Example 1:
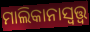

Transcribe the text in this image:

ମାଲିକାନାସ୍ୱତ୍ତ୍ୱ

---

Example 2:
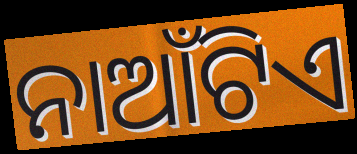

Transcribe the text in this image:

ନାଆଁଟିଏ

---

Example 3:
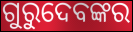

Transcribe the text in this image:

ଗୁରୁଦେବଙ୍କର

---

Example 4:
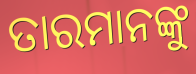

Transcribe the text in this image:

ତାରମାନଙ୍କୁ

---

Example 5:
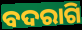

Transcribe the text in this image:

ବଦରାଗି